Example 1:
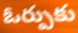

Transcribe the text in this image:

ఓర్పుకు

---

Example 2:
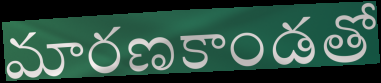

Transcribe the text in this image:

మారణకాండతో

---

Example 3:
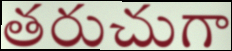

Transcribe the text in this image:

తరుచుగా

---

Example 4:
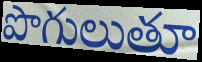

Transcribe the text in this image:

పొగులుతూ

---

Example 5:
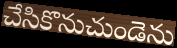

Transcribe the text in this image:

చేసికొనుచుండెను